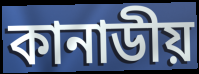
কানাডীয়